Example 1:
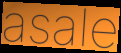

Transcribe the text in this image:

asale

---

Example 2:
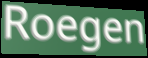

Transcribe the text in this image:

Roegen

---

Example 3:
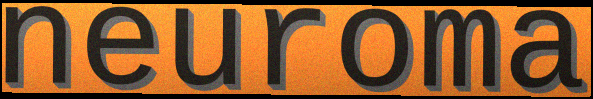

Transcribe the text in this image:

neuroma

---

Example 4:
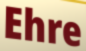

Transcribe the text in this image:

Ehre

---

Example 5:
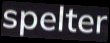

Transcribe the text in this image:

spelter